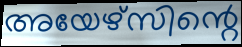
അയേഴ്സിന്റെ